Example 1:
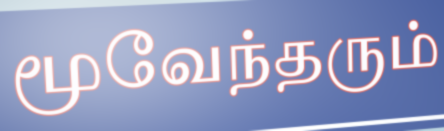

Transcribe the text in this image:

மூவேந்தரும்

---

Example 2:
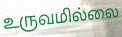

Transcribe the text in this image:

உருவமில்லை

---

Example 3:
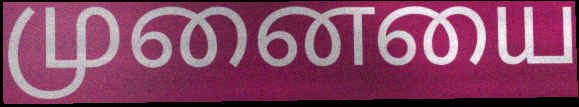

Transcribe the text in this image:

முனையை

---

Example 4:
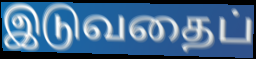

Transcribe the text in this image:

இடுவதைப்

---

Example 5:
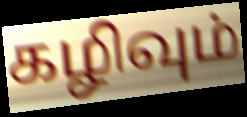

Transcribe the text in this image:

கழிவும்